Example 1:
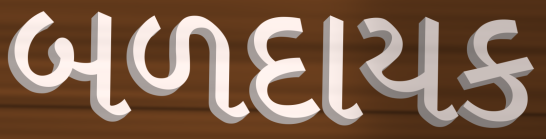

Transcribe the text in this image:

બળદાયક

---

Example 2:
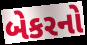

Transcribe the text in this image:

બેકરનો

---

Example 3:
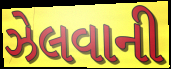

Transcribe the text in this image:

ઝેલવાની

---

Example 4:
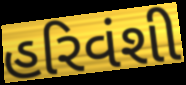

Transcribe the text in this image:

હરિવંશી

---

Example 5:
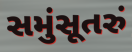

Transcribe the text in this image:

સમુંસૂતરું